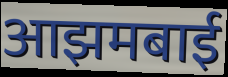
आझमबाई